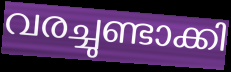
വരച്ചുണ്ടാക്കി